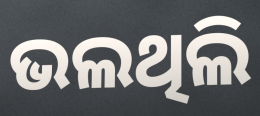
ଭଲଥିଲି